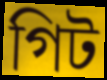
গিট